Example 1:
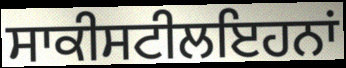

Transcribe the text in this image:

ਸਾਕੀਸਟੀਲਇਹਨਾਂ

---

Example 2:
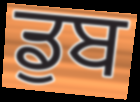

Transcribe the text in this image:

ਡੁਬ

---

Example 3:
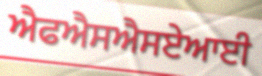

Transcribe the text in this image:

ਐਫਐਸਐਸਏਆਈ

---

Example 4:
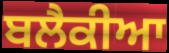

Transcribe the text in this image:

ਬਲੈਕੀਆ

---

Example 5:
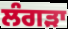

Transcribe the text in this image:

ਲੰਗੜਾ